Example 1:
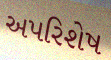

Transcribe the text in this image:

અપરિશેષ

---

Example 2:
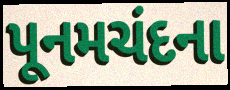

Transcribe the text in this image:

પૂનમચંદના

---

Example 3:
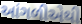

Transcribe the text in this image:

આંગળીએથી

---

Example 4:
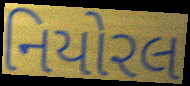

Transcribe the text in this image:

નિયોરલ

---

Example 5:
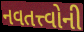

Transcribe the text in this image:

નવતત્ત્વોની